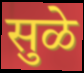
सुळे